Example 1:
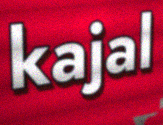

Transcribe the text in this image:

kajal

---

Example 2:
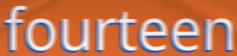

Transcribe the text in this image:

fourteen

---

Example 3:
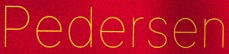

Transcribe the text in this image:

Pedersen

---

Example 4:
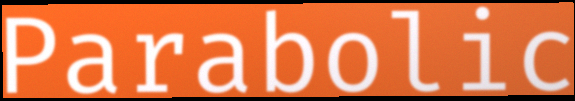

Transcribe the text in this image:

Parabolic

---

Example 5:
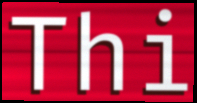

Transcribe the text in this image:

Thi